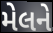
મેલને